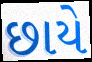
છાયે